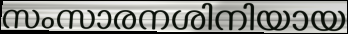
സംസാരനശിനിയായ